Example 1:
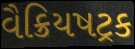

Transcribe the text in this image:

વૈક્રિયષટ્રક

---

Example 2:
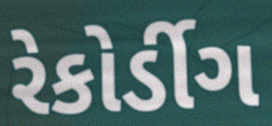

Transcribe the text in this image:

રેકોર્ડીગ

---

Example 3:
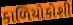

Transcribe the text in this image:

કાળિયોકોશી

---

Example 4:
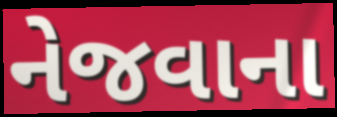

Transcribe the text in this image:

નેજવાના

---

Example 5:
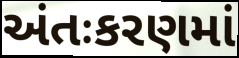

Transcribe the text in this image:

અંતઃકરણમાં